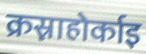
क्रस्नाहोर्काइ